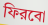
ফিরবো